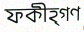
ফকীহ্গণ